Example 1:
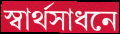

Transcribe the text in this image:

স্বার্থসাধনে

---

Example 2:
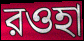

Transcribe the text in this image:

রওহা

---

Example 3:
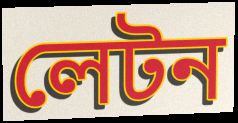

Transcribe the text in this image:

লেটন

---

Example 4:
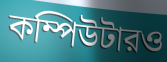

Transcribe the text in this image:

কম্পিউটারও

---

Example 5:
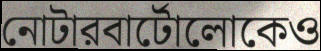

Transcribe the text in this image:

নোটারবার্টোলোকেও